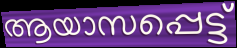
ആയാസപ്പെട്ട്